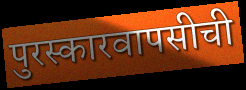
पुरस्कारवापसीची